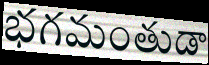
భగమంతుడా